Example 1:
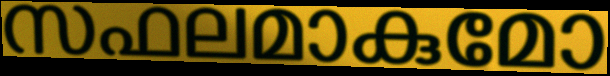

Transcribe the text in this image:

സഫലമാകുമോ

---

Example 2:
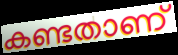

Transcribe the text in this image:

കണ്ടതാണ്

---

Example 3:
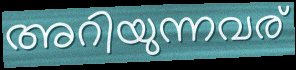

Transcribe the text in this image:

അറിയുന്നവര്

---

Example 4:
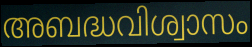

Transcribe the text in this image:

അബദ്ധവിശ്വാസം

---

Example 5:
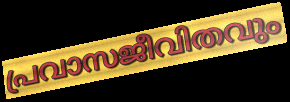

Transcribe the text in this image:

പ്രവാസജീവിതവും